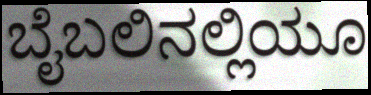
ಬೈಬಲಿನಲ್ಲಿಯೂ